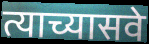
त्याच्यासवे